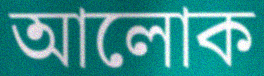
আলোক